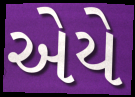
એયે